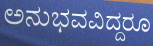
ಅನುಭವವಿದ್ದರೂ